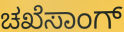
ಚಖೆಸಾಂಗ್